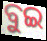
ବୁଇ